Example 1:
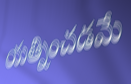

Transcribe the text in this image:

యత్నించడమే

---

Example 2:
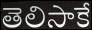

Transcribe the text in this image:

తెలిసాకే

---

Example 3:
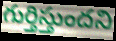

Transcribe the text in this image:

గుర్తిస్తుందని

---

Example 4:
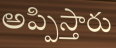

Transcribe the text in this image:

అప్పిస్తారు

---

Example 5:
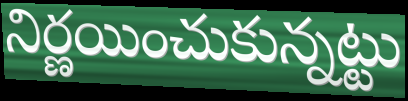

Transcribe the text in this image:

నిర్ణయించుకున్నట్టు